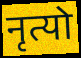
नृत्यो